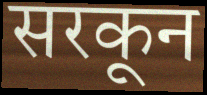
सरकून